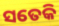
ସତେକି